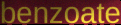
benzoate